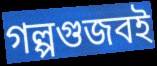
গল্পগুজবই